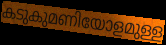
കടുകുമണിയോളമുള്ള